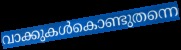
വാക്കുകൾകൊണ്ടുതന്നെ